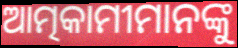
ଆତ୍ମକାମୀମାନଙ୍କୁ